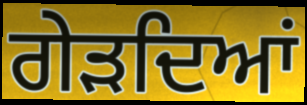
ਗੇੜਦਿਆਂ